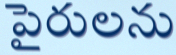
పైరులను